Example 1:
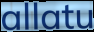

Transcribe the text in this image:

allatu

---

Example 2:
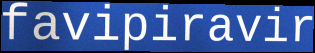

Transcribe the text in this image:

favipiravir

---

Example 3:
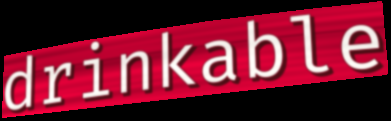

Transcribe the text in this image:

drinkable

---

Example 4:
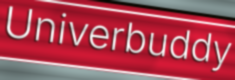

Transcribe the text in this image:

Univerbuddy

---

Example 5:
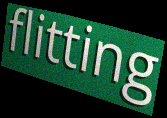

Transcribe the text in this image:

flitting